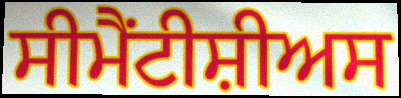
ਸੀਮੈਂਟੀਸ਼ੀਅਸ